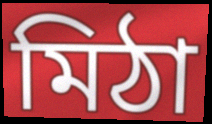
মিঠা